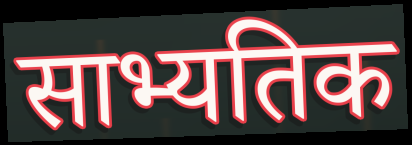
साभ्यतिक